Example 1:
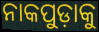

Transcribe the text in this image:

ନାକପୁଡ଼ାକୁ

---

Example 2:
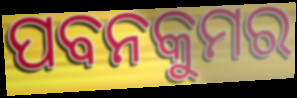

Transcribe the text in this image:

ପବନକୁମର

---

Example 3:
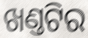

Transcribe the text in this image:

ଖଣ୍ତଟିର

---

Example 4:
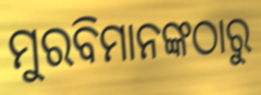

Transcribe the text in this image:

ମୁରବିମାନଙ୍କଠାରୁ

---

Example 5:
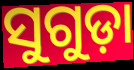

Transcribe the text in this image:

ସୁଗୁଡ଼ା